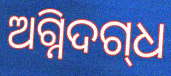
ଅଗ୍ନିଦଗ୍‌ଧ